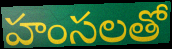
హంసలతో